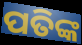
ପତିଙ୍କ